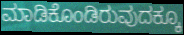
ಮಾಡಿಕೊಂಡಿರುವುದಕ್ಕೂ